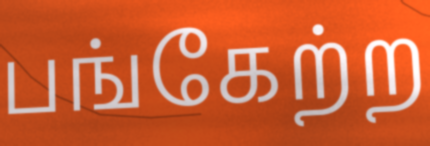
பங்கேற்ற